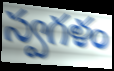
స్వగళం